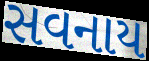
સવનાય